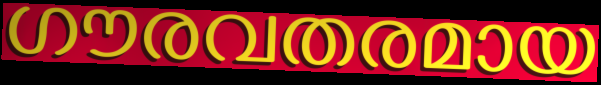
ഗൗരവതരമായ